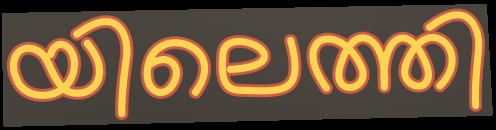
യിലെത്തി